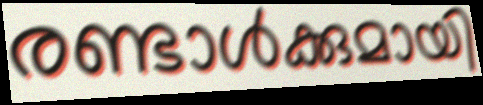
രണ്ടാൾക്കുമായി